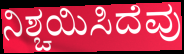
ನಿಶ್ಚಯಿಸಿದೆವು